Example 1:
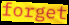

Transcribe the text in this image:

forget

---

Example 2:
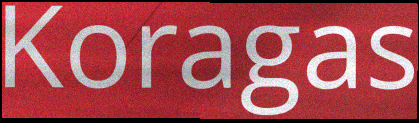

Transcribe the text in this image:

Koragas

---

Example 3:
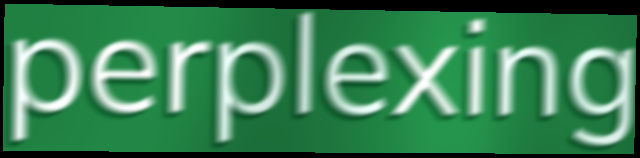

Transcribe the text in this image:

perplexing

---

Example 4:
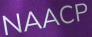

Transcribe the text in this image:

NAACP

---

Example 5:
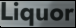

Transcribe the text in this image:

Liquor